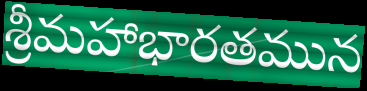
శ్రీమహాభారతమున